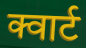
क्वार्ट